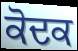
ਕੋਦਕ